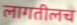
लागतीलच